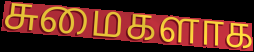
சுமைகளாக